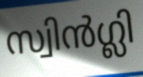
സ്വിൻഗ്ലി